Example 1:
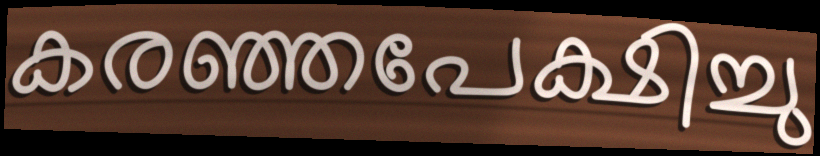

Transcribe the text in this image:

കരഞ്ഞപേക്ഷിച്ചു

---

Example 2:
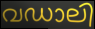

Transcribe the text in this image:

വഡാലി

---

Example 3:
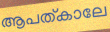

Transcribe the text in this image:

ആപത്കാലേ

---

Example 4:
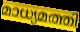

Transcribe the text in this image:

മാധ്യമത്തി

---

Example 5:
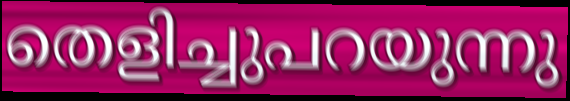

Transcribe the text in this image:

തെളിച്ചുപറയുന്നു